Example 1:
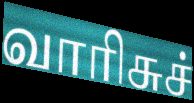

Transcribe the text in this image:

வாரிசுச்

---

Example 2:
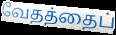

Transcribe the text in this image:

வேதத்தைப்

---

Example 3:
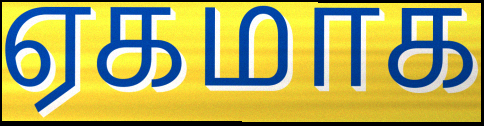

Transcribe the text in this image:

ஏகமாக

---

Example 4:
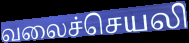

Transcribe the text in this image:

வலைச்செயலி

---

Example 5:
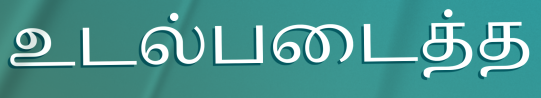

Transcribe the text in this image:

உடல்படைத்த